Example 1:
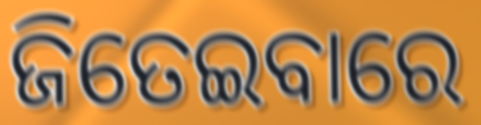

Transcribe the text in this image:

ଜିତେଇବାରେ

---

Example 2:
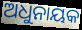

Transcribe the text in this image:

ଅଧୁନାୟକ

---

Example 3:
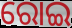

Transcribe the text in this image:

ରୋଇ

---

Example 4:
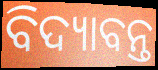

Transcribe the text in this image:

ବିଦ୍ୟାବନ୍ତ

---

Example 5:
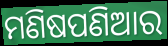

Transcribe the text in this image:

ମଣିଷପଣିଆର